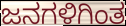
ಜನಗಳಿಗಿಂತ